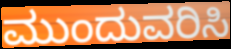
ಮುಂದುವರಿಸಿ